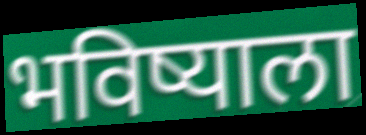
भविष्याला